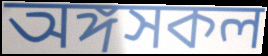
অঙ্গসকল